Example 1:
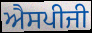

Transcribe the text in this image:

ਐਸਪੀਜੀ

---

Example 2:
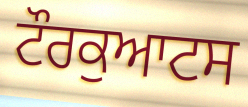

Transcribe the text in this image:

ਟੌਰਕੁਆਟਸ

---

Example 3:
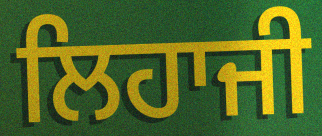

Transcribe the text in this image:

ਲਿਹਾਜੀ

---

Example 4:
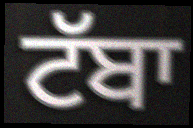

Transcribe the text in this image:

ਟੱਬਾ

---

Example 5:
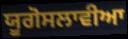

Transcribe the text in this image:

ਯੂਗੋਸਲਾਵੀਆ